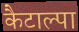
कैटाल्पा